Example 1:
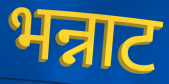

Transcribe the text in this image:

भन्नाट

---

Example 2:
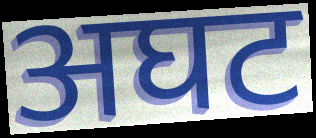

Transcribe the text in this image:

अघट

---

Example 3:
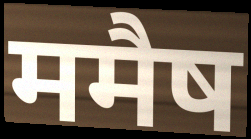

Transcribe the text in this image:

ममैष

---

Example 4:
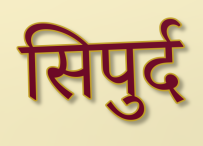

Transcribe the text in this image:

सिपुर्द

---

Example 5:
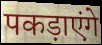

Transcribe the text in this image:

पकड़ाएंगे